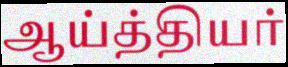
ஆய்த்தியர்